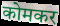
कोमकर